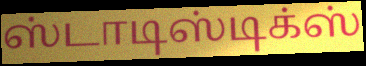
ஸ்டாடிஸ்டிக்ஸ்